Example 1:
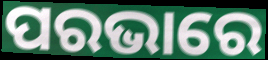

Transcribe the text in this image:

ପରଭାରେ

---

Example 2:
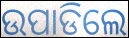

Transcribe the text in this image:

ଉପାଡିଲେ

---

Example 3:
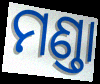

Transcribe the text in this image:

ମଣ୍ଡା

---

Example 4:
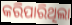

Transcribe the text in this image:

କରିପାରିଥିଲା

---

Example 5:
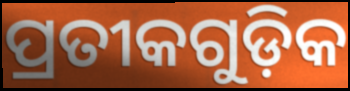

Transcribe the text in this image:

ପ୍ରତୀକଗୁଡ଼ିକ